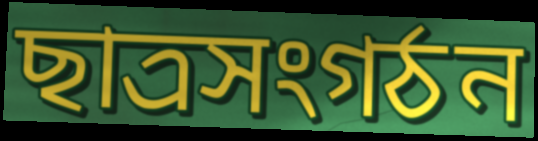
ছাত্রসংগঠন